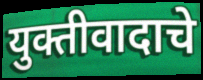
युक्तीवादाचे